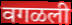
वगळली